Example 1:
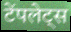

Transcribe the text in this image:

टेंपलेट्स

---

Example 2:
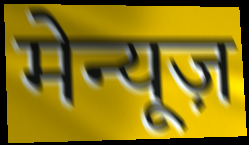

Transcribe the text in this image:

मेन्यूज़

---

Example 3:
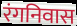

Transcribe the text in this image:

रंगनिवास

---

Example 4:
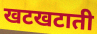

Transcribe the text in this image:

खटखटाती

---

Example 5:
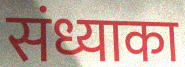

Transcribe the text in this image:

संध्याका